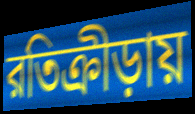
রতিক্রীড়ায়